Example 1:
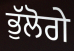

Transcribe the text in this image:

ਭੁੱਲੋਗੇ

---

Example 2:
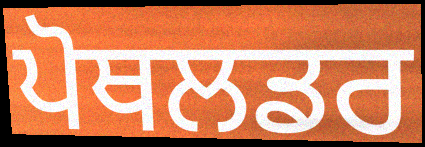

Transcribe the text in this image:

ਪੋਥਲਡਰ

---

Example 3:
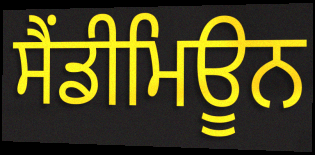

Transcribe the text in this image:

ਸੈਂਡੀਮਿਊਨ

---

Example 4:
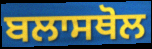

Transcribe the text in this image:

ਬਲਾਸਥੋਲ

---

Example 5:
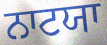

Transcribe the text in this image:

ਨਾਟਯਾ